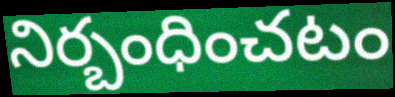
నిర్బంధించటం